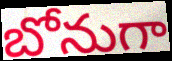
బోనుగా